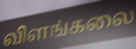
விளங்கலை